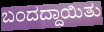
ಬಂದದ್ದಾಯಿತು